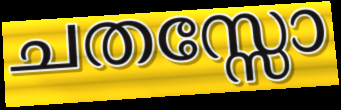
ചതസ്സോ